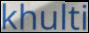
khulti